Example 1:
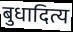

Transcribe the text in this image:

बुधादित्य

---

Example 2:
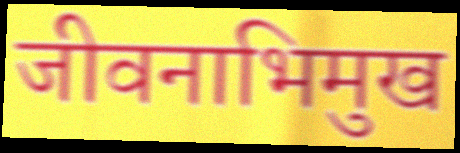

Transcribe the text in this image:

जीवनाभिमुख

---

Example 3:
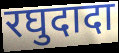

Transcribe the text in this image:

रघुदादा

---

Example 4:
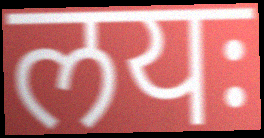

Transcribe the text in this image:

लयः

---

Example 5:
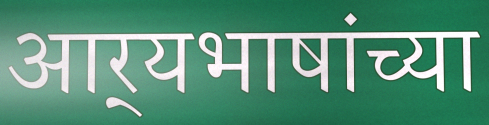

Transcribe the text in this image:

आर्यभाषांच्या